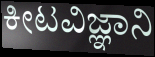
ಕೀಟವಿಜ್ಞಾನಿ